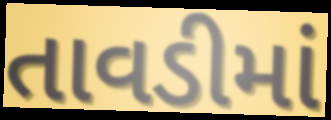
તાવડીમાં